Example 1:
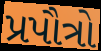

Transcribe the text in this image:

પ્રપૌત્રો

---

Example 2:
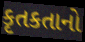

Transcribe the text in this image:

કૃતકતાનો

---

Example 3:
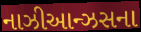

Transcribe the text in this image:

નાઝીઆન્ઝસના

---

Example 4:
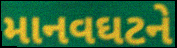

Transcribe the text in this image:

માનવઘટને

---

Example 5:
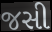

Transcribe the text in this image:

જસી